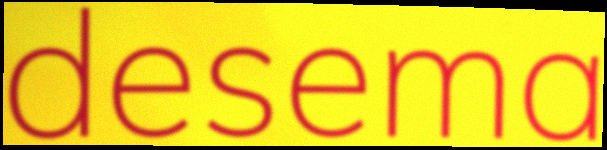
desema